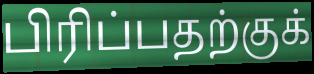
பிரிப்பதற்குக்